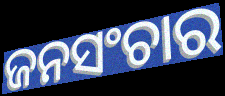
ଜନସଂଚାର